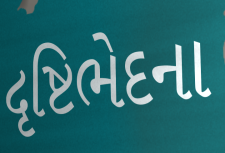
દૃષ્ટિભેદના